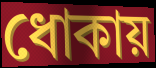
ধোকায়